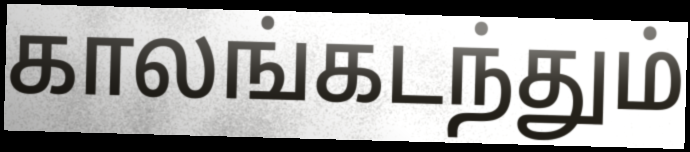
காலங்கடந்தும்